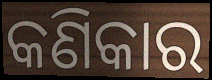
କଣିକାର